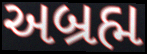
અબ્રહ્મ